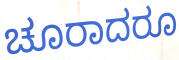
ಚೂರಾದರೂ